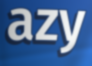
azy